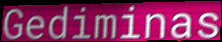
Gediminas